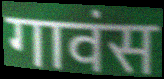
गावंस